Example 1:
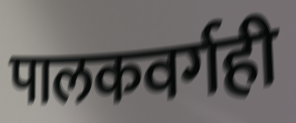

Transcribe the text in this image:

पालकवर्गही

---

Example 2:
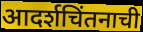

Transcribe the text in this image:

आदर्शचिंतनाची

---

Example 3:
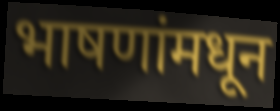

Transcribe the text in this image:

भाषणांमधून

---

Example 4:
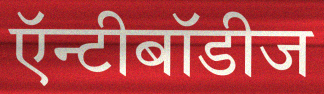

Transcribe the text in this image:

ऍन्टीबॉडीज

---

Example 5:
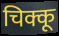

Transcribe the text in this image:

चिक्कू